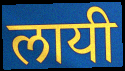
लायी